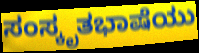
ಸಂಸ್ಕೃತಭಾಷೆಯು